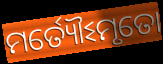
ମର୍ତ୍ୟୌଽମୃତୋ